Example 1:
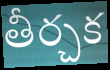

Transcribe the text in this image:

తీర్చక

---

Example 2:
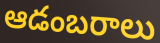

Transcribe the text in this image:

ఆడంబరాలు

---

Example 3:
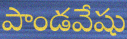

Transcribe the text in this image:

పాండవేషు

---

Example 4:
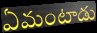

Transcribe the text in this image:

ఏమంటాడు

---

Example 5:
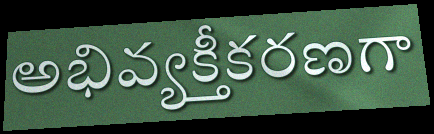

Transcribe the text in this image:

అభివ్యక్తీకరణగా